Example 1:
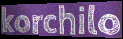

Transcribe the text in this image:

korchilo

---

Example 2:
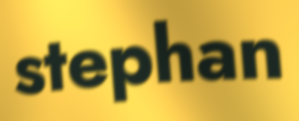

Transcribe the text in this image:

stephan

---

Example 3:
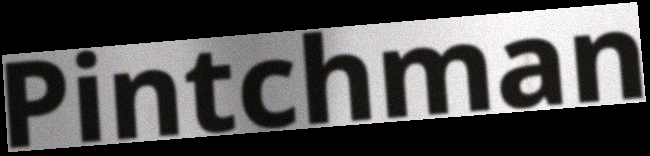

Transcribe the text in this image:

Pintchman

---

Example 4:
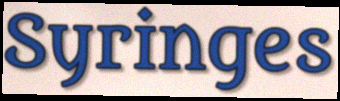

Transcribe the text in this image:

Syringes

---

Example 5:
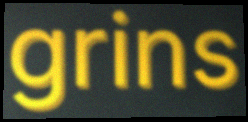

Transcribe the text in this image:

grins